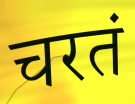
चरतं